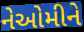
નેઓમીને